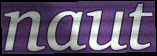
naut